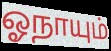
ஓநாயும்